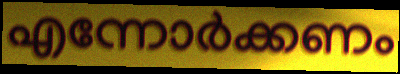
എന്നോർക്കണം